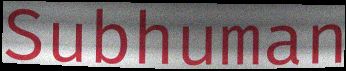
Subhuman